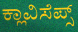
ಕ್ಲಾವಿಸೆಪ್ಸ್